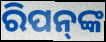
ରିପନ୍‍ଙ୍କ